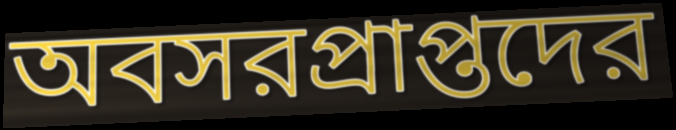
অবসরপ্রাপ্তদের